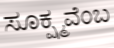
ಸೂಕ್ಷ್ಮವೆಂಬ